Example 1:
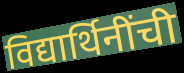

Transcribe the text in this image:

विद्यार्थिनींची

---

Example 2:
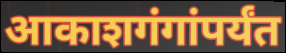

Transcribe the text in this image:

आकाशगंगांपर्यंत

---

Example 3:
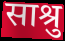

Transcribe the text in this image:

साश्रु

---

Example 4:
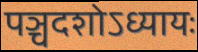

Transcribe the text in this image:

पञ्चदशोऽध्यायः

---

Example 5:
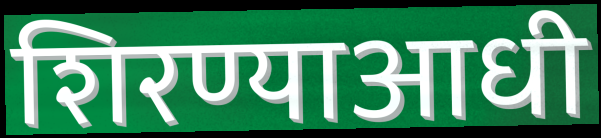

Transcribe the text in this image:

शिरण्याआधी